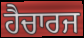
ਹੈਚਾਰਜ